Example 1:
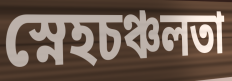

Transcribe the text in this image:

স্নেহচঞ্চলতা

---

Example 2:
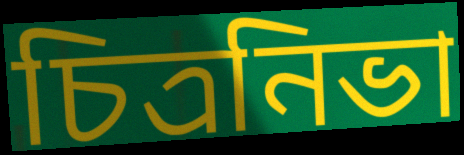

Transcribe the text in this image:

চিত্রনিভা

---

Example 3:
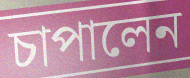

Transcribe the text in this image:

চাপালেন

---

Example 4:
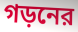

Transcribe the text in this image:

গড়নের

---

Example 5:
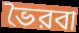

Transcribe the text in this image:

ভৈরবা